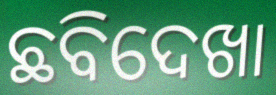
ଛବିଦେଖା